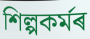
শিল্পকৰ্মৰ